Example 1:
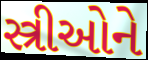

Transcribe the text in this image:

સ્ત્રીઓને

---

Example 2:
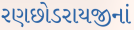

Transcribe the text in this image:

રણછોડરાયજીનાં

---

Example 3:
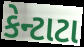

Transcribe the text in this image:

કેન્ટાટા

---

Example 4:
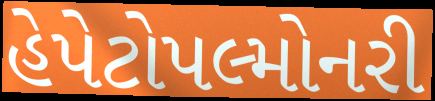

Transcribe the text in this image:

હેપેટોપલ્મોનરી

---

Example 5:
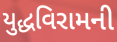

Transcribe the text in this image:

યુદ્ધવિરામની